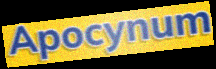
Apocynum